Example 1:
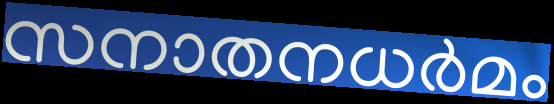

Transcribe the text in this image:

സനാതനധർമം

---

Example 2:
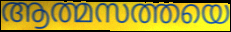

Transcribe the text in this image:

ആത്മസത്തയെ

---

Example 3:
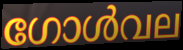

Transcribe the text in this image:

ഗോൾവല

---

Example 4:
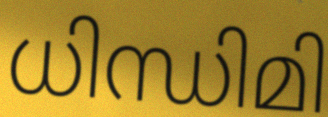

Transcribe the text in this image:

ധിന്ധിമി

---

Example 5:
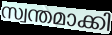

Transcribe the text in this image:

സ്വന്തമാക്കി